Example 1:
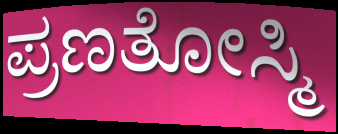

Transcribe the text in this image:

ಪ್ರಣತೋಸ್ಮಿ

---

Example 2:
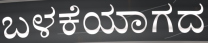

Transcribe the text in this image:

ಬಳಕೆಯಾಗದ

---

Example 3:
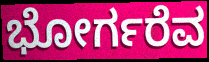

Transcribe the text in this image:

ಭೋರ್ಗರೆವ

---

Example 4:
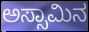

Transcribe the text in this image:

ಅಸ್ಸಾಮಿನ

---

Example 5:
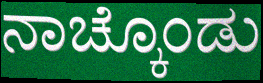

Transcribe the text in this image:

ನಾಚ್ಕೊಂಡು